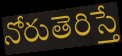
నోరుతెరిస్తే